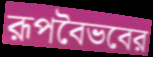
রূপবৈভবের